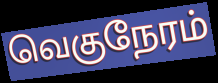
வெகுநேரம்